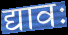
द्यावः